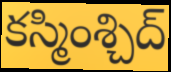
కస్మింశ్చిద్